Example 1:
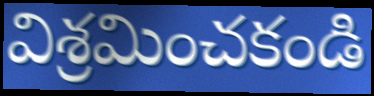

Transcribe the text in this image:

విశ్రమించకండి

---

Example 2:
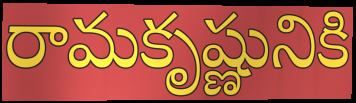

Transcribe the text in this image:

రామకృష్ణునికి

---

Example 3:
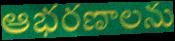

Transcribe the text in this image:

ఆభరణాలను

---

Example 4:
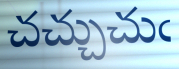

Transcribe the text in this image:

చచ్చుచుఁ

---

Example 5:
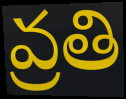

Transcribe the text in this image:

వ్రతి